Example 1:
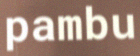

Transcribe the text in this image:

pambu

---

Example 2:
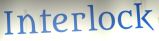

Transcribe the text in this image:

Interlock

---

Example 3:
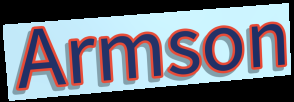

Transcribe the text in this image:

Armson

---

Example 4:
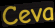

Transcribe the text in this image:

Ceva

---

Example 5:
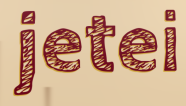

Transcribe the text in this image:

jetei